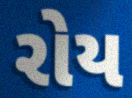
રોય